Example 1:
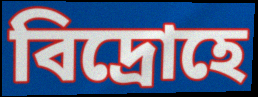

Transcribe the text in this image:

বিদ্ৰোহে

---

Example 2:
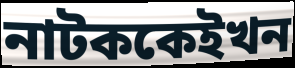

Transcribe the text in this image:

নাটককেইখন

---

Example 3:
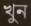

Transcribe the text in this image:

খুন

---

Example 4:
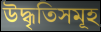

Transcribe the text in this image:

উদ্ধৃতিসমূহ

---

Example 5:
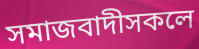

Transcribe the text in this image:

সমাজবাদীসকলে